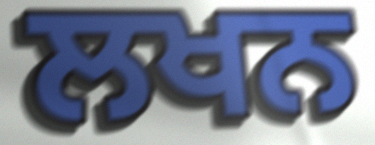
ਲਖਨ